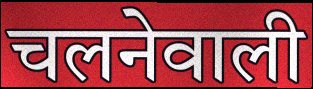
चलनेवाली